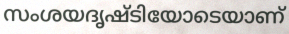
സംശയദൃഷ്ടിയോടെയാണ്